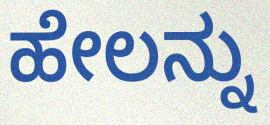
ಹೇಲನ್ನು